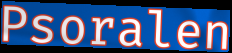
Psoralen